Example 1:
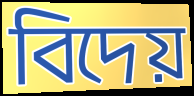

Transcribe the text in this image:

বিদেয়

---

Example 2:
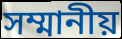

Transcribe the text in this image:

সম্মানীয়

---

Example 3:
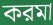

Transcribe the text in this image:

করমা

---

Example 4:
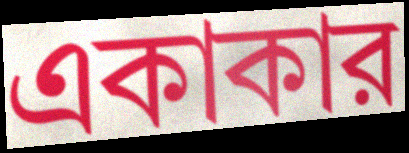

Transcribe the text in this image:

একাকার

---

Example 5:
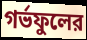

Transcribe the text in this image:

গর্ভফুলের